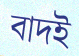
বাদই